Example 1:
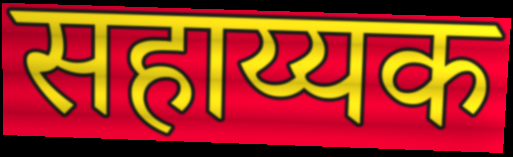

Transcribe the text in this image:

सहाय्यक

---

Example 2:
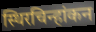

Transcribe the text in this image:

स्थिरचिन्हांकन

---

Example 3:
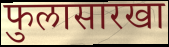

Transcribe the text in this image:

फुलासारखा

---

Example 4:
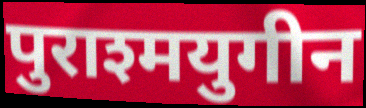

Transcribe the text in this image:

पुराश्मयुगीन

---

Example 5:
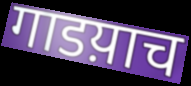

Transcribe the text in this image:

गाडय़ाच